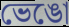
ভেঙো